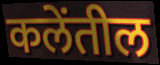
कलेंतील